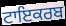
ਟਾਇਕਰਬ